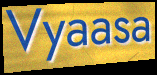
Vyaasa